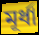
মূর্ধা